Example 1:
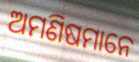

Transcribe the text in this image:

ଅମଣିଷମାନେ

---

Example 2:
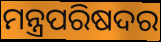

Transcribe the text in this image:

ମନ୍ତ୍ରପରିଷଦର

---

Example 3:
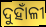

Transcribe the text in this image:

ଦୁହାଁଳୀ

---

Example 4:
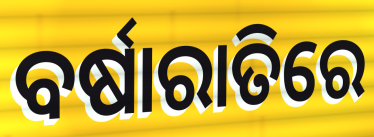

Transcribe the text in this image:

ବର୍ଷାରାତିରେ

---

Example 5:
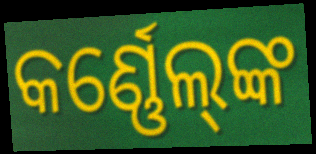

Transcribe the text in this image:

କର୍ଣ୍ଣେଲ୍‌ଙ୍କ